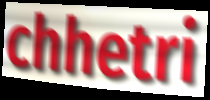
chhetri